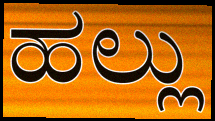
ಹಲ್ಲು